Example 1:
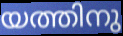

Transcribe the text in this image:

യത്തിനു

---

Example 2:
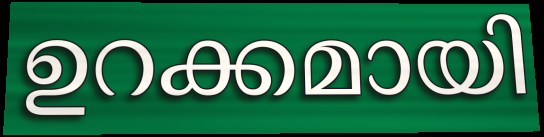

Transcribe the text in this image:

ഉറക്കമായി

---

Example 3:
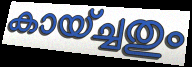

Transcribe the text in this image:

കായ്ച്ചതും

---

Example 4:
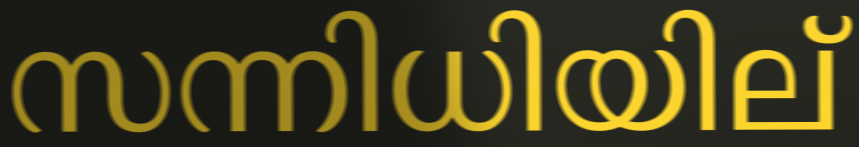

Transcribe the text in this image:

സന്നിധിയില്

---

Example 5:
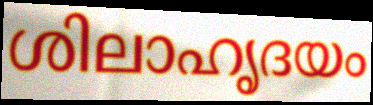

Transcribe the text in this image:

ശിലാഹൃദയം